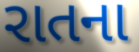
રાતના